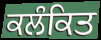
ਕਲੰਕਿਤ